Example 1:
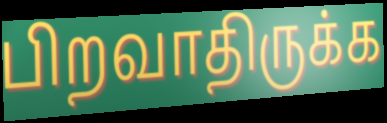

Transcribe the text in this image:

பிறவாதிருக்க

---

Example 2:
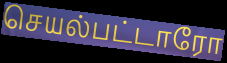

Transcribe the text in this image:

செயல்பட்டாரோ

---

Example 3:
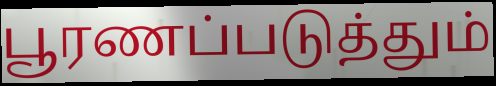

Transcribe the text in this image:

பூரணப்படுத்தும்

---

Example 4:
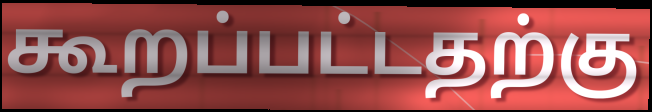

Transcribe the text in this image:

கூறப்பட்டதற்கு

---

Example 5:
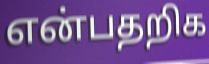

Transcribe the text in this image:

என்பதறிக